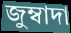
জুম্বাদা